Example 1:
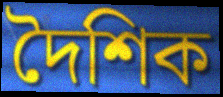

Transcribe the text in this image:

দৈশিক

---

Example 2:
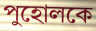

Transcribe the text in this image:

পুহোলকে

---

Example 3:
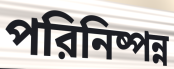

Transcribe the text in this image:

পরিনিষ্পন্ন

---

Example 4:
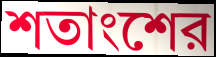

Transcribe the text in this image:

শতাংশের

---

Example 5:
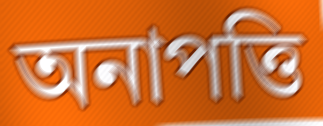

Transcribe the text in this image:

অনাপত্তি